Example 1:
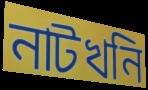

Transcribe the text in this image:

নাটখনি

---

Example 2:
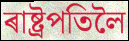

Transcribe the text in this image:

ৰাষ্ট্ৰপতিলৈ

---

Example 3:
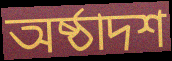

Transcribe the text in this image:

অষ্ঠাদশ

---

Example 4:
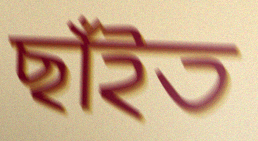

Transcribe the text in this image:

ছাঁইত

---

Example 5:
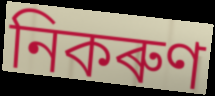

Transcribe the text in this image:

নিকৰুণ